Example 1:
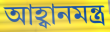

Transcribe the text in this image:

আহ্বানমন্ত্র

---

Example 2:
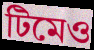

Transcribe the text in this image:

টিমেও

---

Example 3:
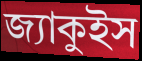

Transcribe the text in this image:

জ্যাকুইস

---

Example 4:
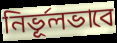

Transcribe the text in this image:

নির্ভূলভাবে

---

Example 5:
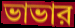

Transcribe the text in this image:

ভাভার